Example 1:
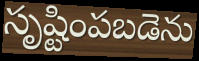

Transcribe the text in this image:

సృష్టింపబడెను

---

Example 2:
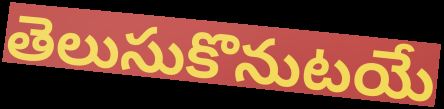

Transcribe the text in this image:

తెలుసుకొనుటయే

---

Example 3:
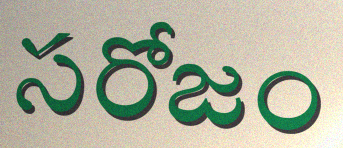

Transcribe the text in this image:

సరోజం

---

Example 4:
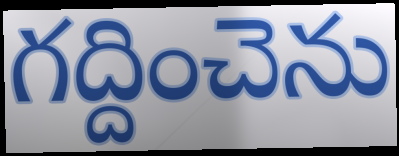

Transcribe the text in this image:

గద్దించెను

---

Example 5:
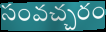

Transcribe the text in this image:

సంవచ్చరం